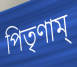
পিতৃণাম্